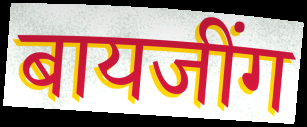
बायजींग